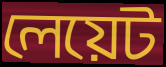
লেয়েট